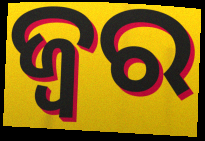
ଜ୍ବର